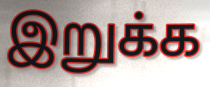
இறுக்க